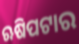
ଋଷିପଟାର